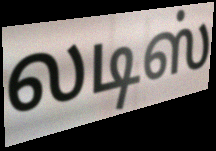
லடிஸ்